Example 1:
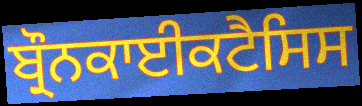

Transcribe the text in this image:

ਬ੍ਰੌਨਕਾਈਕਟੈਸਿਸ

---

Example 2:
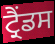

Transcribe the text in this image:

ਟ੍ਰੈਂਡਸ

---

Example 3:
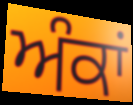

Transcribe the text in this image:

ਅੰਕਾਂ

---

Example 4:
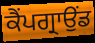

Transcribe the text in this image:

ਕੈਂਪਗ੍ਰਾਉਂਡ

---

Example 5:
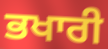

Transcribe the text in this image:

ਭਖਾਰੀ